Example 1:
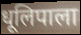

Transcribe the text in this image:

धूलिपाला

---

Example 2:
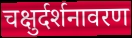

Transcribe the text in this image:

चक्षुर्दर्शनावरण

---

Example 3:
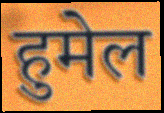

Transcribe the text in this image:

हुमेल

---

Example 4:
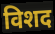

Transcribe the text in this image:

विशद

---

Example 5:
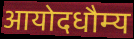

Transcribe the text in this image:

आयोदधौम्य